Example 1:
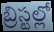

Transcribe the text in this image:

బ్రిస్టల్లో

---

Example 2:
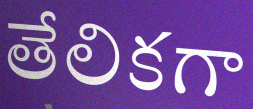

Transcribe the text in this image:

తేలికగా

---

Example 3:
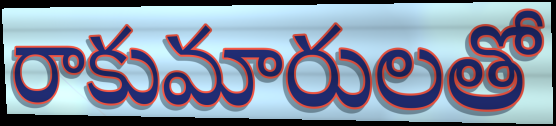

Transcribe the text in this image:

రాకుమారులతో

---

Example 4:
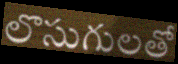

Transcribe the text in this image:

లొసుగులతో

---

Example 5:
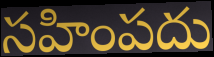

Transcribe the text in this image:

సహింపదు